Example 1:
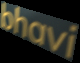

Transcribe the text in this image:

bhavi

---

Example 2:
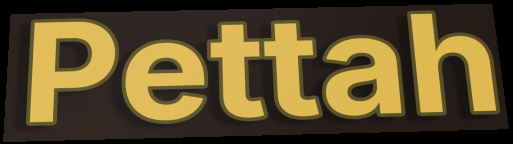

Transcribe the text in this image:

Pettah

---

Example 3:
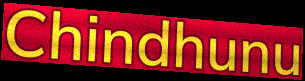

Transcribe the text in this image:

Chindhunu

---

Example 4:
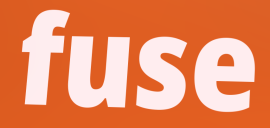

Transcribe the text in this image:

fuse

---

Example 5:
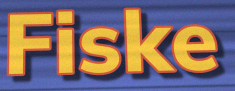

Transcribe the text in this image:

Fiske